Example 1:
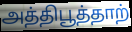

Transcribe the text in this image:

அத்திபூத்தாற்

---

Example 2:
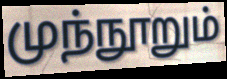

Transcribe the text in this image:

முந்நூறும்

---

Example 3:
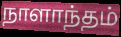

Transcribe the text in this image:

நாளாந்தம்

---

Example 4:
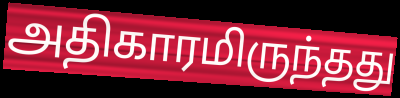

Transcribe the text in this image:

அதிகாரமிருந்தது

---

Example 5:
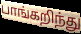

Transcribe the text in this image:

பாங்கறிந்து